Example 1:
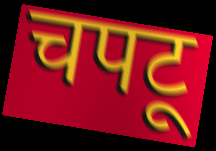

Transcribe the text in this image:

चपटू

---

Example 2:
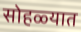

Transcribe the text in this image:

सोहळ्यात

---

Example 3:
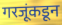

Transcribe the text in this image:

गरजूंकडून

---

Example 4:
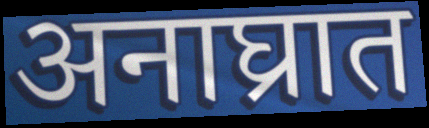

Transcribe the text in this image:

अनाघ्रात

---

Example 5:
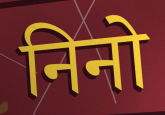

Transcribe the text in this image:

निनो